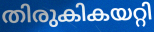
തിരുകികയറ്റി